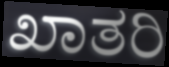
ಖಾತರಿ